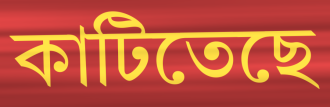
কাটিতেছে